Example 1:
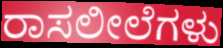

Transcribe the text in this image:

ರಾಸಲೀಲೆಗಳು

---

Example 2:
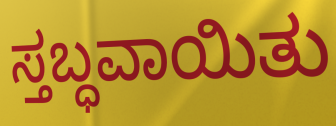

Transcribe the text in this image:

ಸ್ತಬ್ಧವಾಯಿತು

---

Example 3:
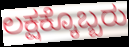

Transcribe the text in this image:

ಲಕ್ಷಕ್ಕೊಬ್ಬರು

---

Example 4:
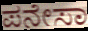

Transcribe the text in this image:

ಪನೇಸಾ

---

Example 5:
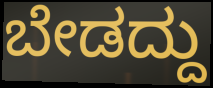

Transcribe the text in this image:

ಬೇಡದ್ದು